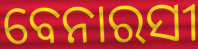
ବେନାରସୀ